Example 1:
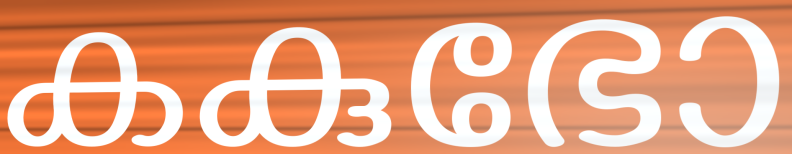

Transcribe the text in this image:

കകുഭോ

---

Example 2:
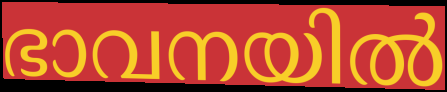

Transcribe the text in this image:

ഭാവനയിൽ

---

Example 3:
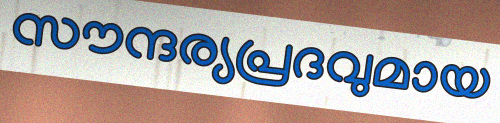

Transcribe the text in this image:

സൗന്ദര്യപ്രദവുമായ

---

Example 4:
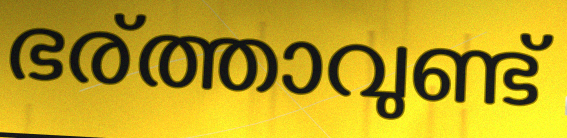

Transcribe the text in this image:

ഭര്ത്താവുണ്ട്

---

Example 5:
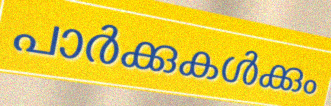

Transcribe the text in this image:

പാർക്കുകൾക്കും